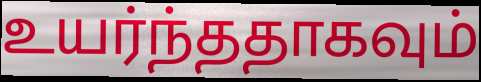
உயர்ந்ததாகவும்